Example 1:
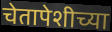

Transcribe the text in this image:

चेतापेशीच्या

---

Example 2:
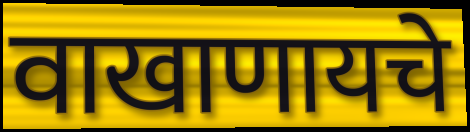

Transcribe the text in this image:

वाखाणायचे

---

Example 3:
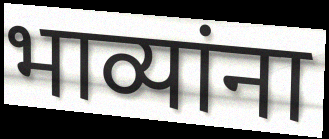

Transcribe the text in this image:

भाव्यांना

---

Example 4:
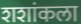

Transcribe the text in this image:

शशांकला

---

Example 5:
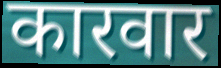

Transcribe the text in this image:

कारवार